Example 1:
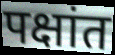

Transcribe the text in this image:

पक्षांत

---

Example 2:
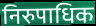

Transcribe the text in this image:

निरुपाधिक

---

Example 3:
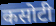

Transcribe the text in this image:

कसोटी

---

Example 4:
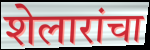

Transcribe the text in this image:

शेलारांचा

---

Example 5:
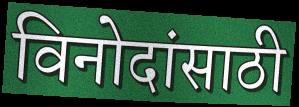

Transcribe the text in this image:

विनोदांसाठी